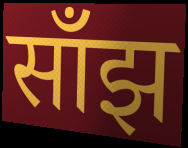
साँझ